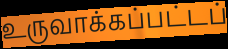
உருவாக்கப்பட்டப்